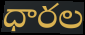
ధారల